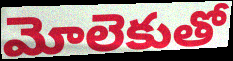
మోలెకుతో